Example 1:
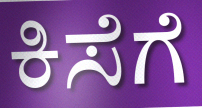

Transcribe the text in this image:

ಕಿಸೆಗೆ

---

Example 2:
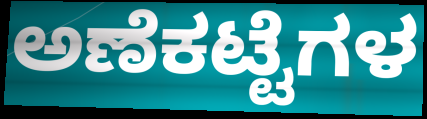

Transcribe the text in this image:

ಅಣೆಕಟ್ಟೆಗಳ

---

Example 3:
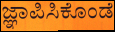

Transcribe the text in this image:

ಜ್ಞಾಪಿಸಿಕೊಂಡೆ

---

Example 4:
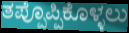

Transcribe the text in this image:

ತಪ್ಪೊಪ್ಪಿಕೊಳ್ಳಲು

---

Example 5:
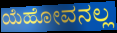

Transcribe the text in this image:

ಯೆಹೋವನಲ್ಲ